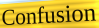
Confusion